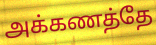
அக்கணத்தே